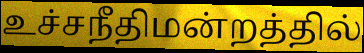
உச்சநீதிமன்றத்தில்